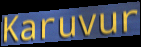
Karuvur